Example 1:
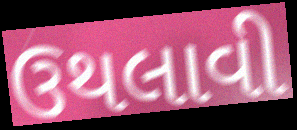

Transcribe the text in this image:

ઉથલાવી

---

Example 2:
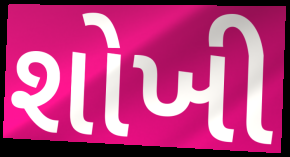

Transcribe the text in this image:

શોખી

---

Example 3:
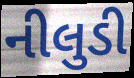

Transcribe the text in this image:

નીલુડી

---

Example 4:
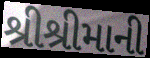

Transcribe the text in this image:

શ્રીશ્રીમાની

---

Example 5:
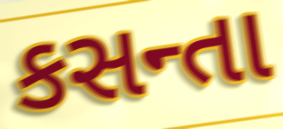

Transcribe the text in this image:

કસન્તા